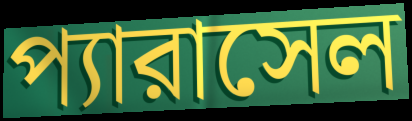
প্যারাসেল